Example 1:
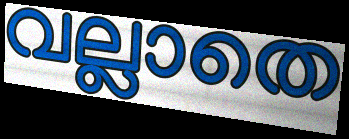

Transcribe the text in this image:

വല്ലാതെ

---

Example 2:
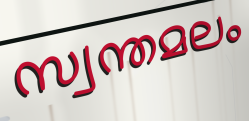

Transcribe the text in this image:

സ്വന്തമലം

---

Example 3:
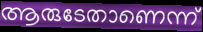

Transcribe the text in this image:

ആരുടേതാണെന്ന്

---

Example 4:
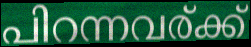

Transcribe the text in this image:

പിറന്നവര്ക്ക്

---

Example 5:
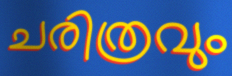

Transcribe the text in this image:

ചരിത്രവും